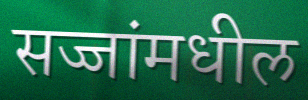
सज्जांमधील